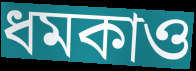
ধমকাও